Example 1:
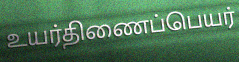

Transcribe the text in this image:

உயர்திணைப்பெயர்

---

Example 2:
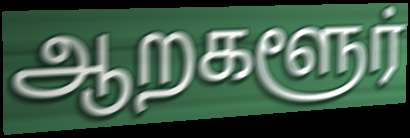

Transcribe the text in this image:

ஆறகளூர்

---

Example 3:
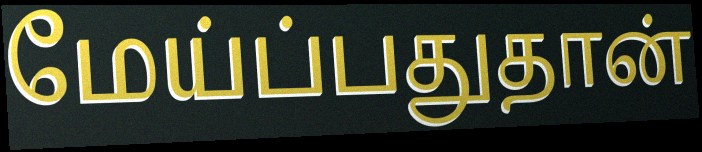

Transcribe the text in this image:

மேய்ப்பதுதான்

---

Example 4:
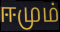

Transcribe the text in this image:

ஈமும்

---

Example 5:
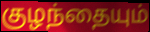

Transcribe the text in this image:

குழந்தையும்